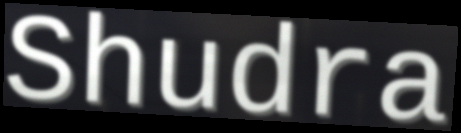
Shudra